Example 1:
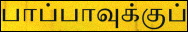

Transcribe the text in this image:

பாப்பாவுக்குப்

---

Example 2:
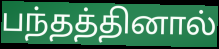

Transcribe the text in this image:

பந்தத்தினால்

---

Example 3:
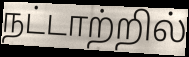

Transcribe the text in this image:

நட்டாற்றில்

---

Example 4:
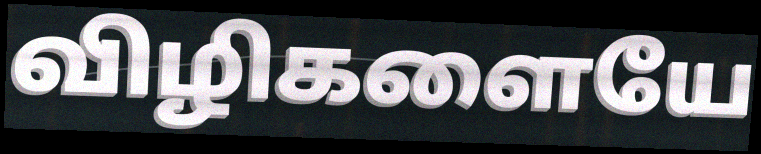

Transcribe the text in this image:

விழிகளையே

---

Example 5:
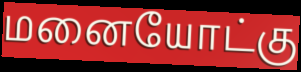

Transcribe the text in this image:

மனையோட்கு